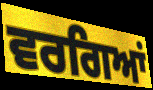
ਵਰਗਿਆਂ